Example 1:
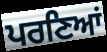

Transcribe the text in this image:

ਪਰਣਿਆਂ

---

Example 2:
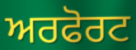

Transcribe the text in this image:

ਅਰਫੋਰਟ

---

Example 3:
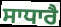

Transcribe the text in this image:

ਸਾਧਾਰੈ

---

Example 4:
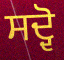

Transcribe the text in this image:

ਸਦ੍ਦੋ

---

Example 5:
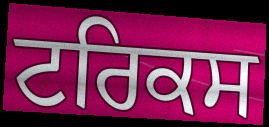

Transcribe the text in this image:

ਟਰਿਕਸ